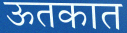
ऊतकात